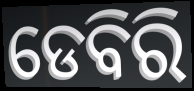
ଡେବିରି